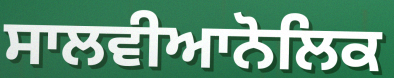
ਸਾਲਵੀਆਨੋਲਿਕ